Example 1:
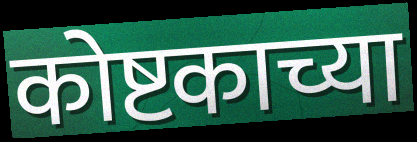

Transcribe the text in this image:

कोष्टकाच्या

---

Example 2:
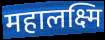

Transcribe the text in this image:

महालक्ष्मि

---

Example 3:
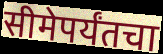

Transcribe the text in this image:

सीमेपर्यंतचा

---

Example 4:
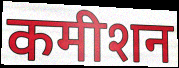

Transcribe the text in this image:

कमीशन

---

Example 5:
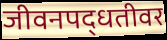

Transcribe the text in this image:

जीवनपद्धतीवर